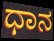
ಧಾನ